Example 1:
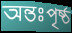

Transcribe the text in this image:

অন্তঃপৃষ্ঠ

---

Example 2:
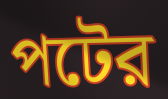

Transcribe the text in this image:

পটের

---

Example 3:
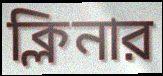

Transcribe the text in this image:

ক্লিনার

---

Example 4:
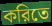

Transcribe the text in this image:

করিতে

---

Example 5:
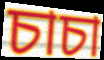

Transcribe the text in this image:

চাচা